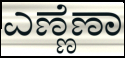
ಎಣ್ಣೆಣಾ